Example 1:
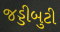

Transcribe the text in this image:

જડ્ડીબુટી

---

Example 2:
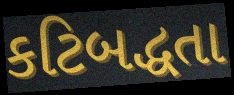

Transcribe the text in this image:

કટિબદ્ધતા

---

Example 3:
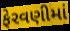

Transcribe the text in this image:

ફેરવણીમાં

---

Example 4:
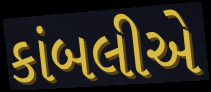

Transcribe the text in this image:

કાંબલીએ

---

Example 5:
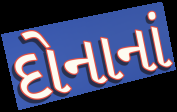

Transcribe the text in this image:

દોનાનાં